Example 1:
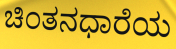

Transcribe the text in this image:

ಚಿಂತನಧಾರೆಯ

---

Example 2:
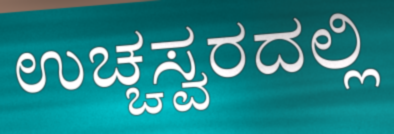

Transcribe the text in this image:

ಉಚ್ಚಸ್ವರದಲ್ಲಿ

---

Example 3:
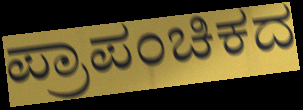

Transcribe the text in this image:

ಪ್ರಾಪಂಚಿಕದ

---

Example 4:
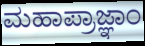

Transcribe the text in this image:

ಮಹಾಪ್ರಾಜ್ಞಾಂ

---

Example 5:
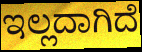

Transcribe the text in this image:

ಇಲ್ಲದಾಗಿದೆ